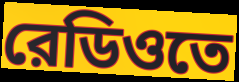
রেডিওতে